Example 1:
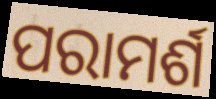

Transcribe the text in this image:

ପରାମର୍ଶ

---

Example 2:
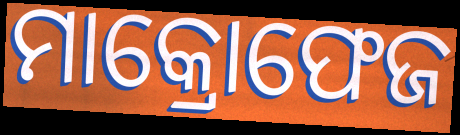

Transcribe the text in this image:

ମାକ୍ରୋଫେଜ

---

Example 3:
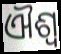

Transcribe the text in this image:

ଐଶ୍ୱ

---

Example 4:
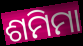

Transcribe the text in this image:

ଶମିମା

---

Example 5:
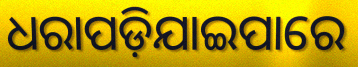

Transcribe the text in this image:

ଧରାପଡ଼ିଯାଇପାରେ